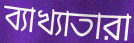
ব্যাখ্যাতারা